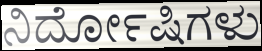
ನಿರ್ದೋಷಿಗಳು